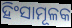
ହିଂସାମୂଳକ